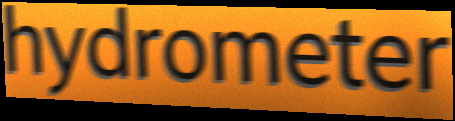
hydrometer